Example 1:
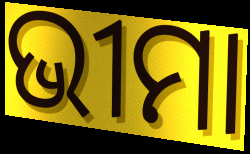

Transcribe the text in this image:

ଭୀମା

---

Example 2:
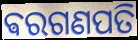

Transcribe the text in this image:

ଵରଗଣପତି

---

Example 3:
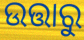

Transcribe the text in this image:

ଉତ୍ତାରୁ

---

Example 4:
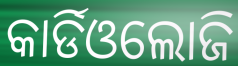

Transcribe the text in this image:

କାର୍ଡିଓଲୋଜି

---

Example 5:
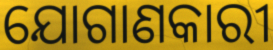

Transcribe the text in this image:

ଯୋଗାଣକାରୀ